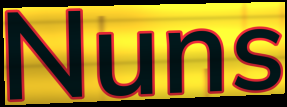
Nuns